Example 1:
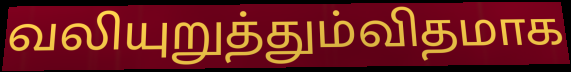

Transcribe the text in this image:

வலியுறுத்தும்விதமாக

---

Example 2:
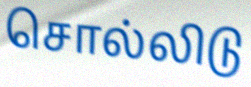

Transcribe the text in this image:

சொல்லிடு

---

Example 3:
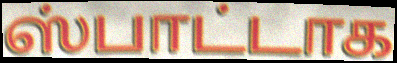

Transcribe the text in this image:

ஸ்பாட்டாக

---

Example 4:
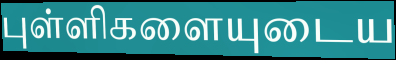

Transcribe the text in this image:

புள்ளிகளையுடைய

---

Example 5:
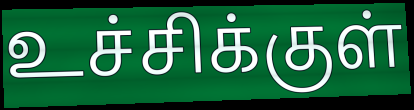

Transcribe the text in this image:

உச்சிக்குள்